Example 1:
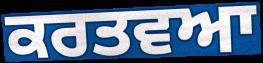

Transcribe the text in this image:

ਕਰਤਵਆ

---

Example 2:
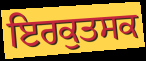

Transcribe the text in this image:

ਇਰਕੁਤਸਕ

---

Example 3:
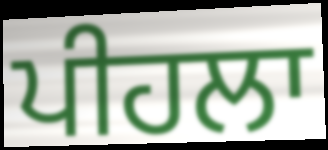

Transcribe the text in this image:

ਪੀਹਲਾ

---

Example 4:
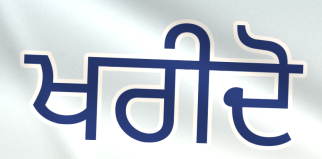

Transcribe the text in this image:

ਖਰੀਦੋ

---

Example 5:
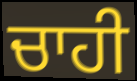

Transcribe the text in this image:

ਚਾਹੀ